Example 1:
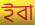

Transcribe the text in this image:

ইবা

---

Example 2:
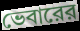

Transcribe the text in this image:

ভেবারের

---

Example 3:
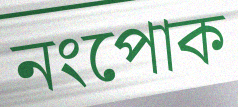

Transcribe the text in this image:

নংপোক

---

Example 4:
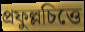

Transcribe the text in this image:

প্রফুল্লচিত্তে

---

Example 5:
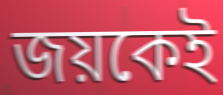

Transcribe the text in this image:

জয়কেই